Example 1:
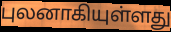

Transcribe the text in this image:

புலனாகியுள்ளது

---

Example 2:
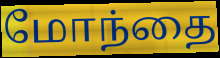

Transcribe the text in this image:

மோந்தை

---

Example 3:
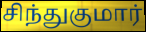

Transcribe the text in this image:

சிந்துகுமார்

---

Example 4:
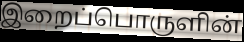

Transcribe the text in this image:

இறைப்பொருளின்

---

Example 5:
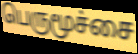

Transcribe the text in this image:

பெருமூச்சை